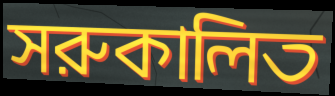
সৰুকালিত